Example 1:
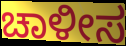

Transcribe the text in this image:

ಚಾಳೀಸ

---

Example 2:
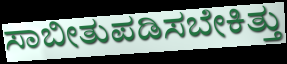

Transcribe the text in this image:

ಸಾಬೀತುಪಡಿಸಬೇಕಿತ್ತು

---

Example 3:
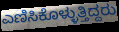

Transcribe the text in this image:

ಎಣಿಸಿಕೊಳ್ಳುತ್ತಿದ್ದರು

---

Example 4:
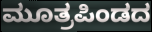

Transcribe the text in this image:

ಮೂತ್ರಪಿಂಡದ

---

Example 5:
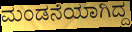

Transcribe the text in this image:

ಮಂಡನೆಯಾಗಿದ್ದ